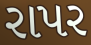
રાપર